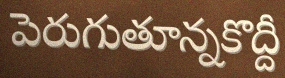
పెరుగుతూన్నకొద్దీ